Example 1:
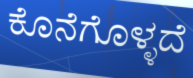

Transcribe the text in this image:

ಕೊನೆಗೊಳ್ಳದೆ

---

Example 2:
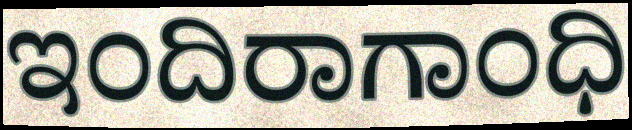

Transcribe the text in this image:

ಇಂದಿರಾಗಾಂಧಿ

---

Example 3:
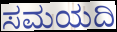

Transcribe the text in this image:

ಸಮಯದಿ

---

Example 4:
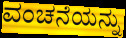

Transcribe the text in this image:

ವಂಚನೆಯನ್ನು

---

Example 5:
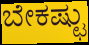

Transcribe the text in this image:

ಬೇಕಷ್ಟು